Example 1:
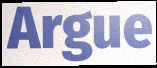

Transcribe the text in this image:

Argue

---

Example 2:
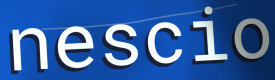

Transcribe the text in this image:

nescio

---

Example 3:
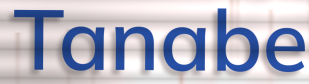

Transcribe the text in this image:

Tanabe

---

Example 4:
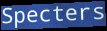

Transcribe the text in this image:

Specters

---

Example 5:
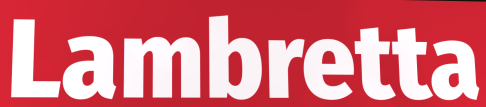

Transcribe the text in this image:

Lambretta